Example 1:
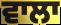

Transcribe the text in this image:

ਵਾਲਾ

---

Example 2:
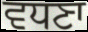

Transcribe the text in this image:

ਵਧਣਾ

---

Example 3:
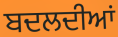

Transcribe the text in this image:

ਬਦਲਦੀਆਂ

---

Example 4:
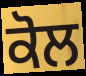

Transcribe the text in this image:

ਕੋਲ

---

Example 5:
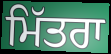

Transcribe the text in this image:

ਮਿੱਤਰਾ